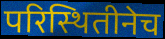
परिस्थितीनेच